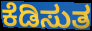
ಕೆಡಿಸುತ